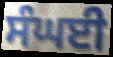
ਸੰਘਈ